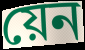
য়েন